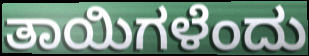
ತಾಯಿಗಳೆಂದು